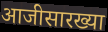
आजीसारख्या